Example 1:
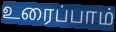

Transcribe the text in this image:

உரைப்பாம்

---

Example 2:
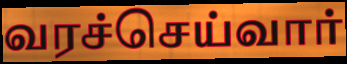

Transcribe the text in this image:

வரச்செய்வார்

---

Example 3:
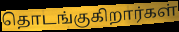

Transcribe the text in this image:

தொடங்குகிறார்கள்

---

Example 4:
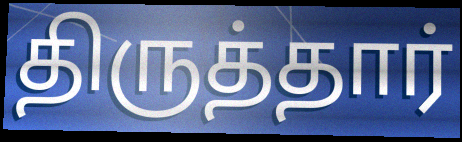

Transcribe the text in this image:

திருத்தார்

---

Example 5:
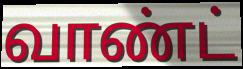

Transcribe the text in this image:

வாண்ட்